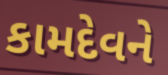
કામદેવને